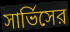
সার্ভিসের